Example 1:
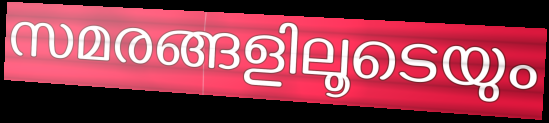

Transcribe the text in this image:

സമരങ്ങളിലൂടെയും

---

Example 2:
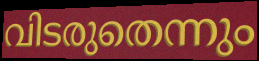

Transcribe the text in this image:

വിടരുതെന്നും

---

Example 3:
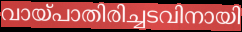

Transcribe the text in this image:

വായ്പാതിരിച്ചടവിനായി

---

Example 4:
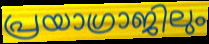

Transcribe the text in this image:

പ്രയാഗ്രാജിലും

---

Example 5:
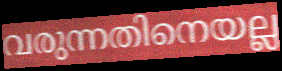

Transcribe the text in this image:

വരുന്നതിനെയല്ല